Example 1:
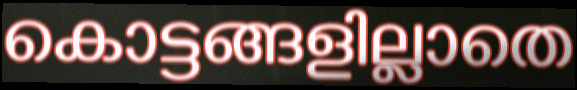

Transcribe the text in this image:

കൊട്ടങ്ങളില്ലാതെ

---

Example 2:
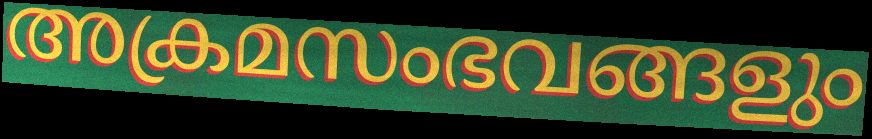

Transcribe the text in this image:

അക്രമസംഭവങ്ങളും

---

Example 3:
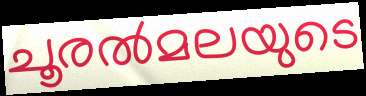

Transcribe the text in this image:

ചൂരൽമലയുടെ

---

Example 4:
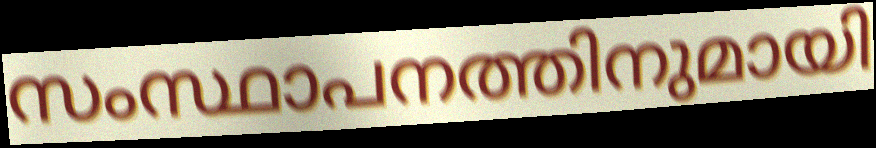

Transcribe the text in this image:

സംസ്ഥാപനത്തിനുമായി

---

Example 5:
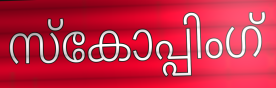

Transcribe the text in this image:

സ്കോപ്പിംഗ്